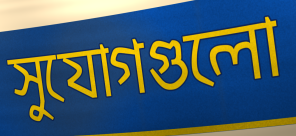
সুযোগগুলো